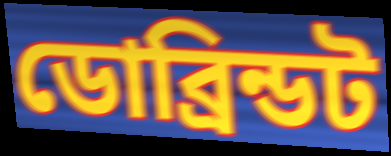
ডোব্রিন্ডট